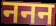
ननन